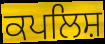
ਕਪਲਿਸ਼